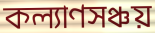
কল্যাণসঞ্চয়